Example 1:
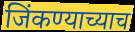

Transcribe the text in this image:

जिंकण्याच्याच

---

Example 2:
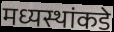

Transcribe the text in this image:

मध्यस्थांकडे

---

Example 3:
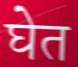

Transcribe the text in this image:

घेत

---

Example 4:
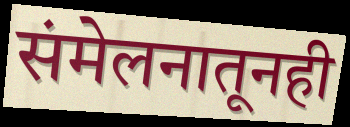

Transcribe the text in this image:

संमेलनातूनही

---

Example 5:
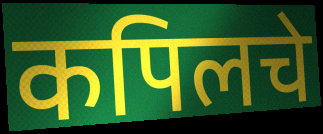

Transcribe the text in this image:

कपिलचे